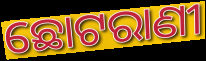
ଛୋଟରାଣୀ